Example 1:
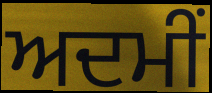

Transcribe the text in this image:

ਅਦਮੀਂ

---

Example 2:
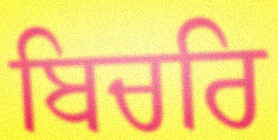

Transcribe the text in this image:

ਬਿਚਰਿ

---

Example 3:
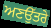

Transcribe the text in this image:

ਅਣਉੱਤਰੇ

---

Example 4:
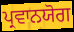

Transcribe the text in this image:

ਪ੍ਰਵਾਨਯੋਗ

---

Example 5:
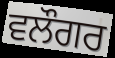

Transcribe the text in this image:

ਵਲੌਗਰ